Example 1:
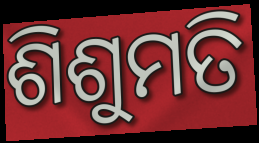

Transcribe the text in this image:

ଶିଶୁମତି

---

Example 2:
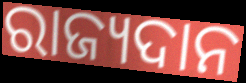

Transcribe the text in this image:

ରାଜ୍ୟଦାନ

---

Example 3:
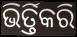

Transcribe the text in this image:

ଭିର୍ତ୍ତିକରି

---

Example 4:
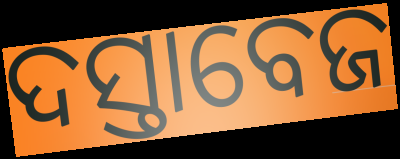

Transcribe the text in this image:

ଦସ୍ତାବେଜ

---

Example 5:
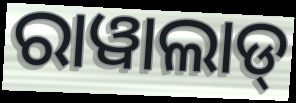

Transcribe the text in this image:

ରାୱାଲାଡ୍